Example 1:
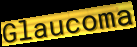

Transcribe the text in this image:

Glaucoma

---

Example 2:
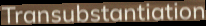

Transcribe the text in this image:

Transubstantiation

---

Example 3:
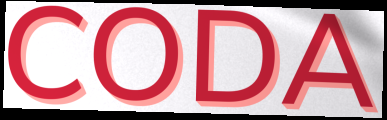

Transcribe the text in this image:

CODA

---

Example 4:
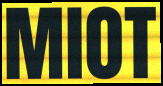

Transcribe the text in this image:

MIOT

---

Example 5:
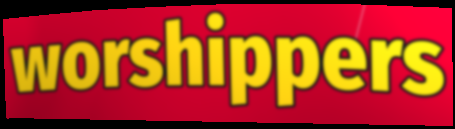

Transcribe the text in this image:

worshippers